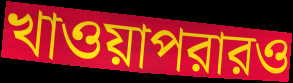
খাওয়াপরারও